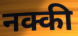
नक्की